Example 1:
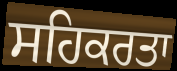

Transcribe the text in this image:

ਸਹਿਕਰਤਾ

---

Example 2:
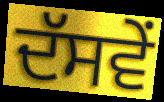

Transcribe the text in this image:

ਦੱਸਵੇਂ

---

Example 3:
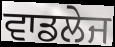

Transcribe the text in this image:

ਵਾਡਲੇਜ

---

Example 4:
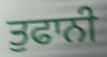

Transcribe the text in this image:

ਤੁਫਾਨੀ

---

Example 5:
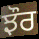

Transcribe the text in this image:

ਝੌਰ